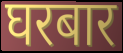
घरबार